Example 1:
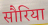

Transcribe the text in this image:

सौरिया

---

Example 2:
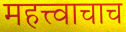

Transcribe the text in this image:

महत्त्वाचाच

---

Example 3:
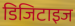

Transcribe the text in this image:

डिजिटाइज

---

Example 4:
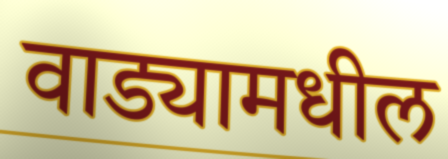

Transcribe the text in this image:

वाड्यामधील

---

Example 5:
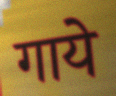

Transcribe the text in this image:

गाये